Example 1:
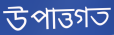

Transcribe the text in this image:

উপাত্তগত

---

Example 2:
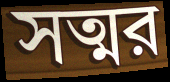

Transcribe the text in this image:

সত্মর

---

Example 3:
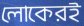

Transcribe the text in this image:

লোকেরই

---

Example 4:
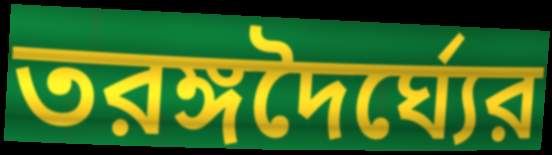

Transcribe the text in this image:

তরঙ্গদৈর্ঘ্যের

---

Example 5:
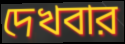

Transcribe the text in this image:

দেখবার